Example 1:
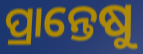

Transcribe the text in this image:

ପ୍ରାନ୍ତେଷୁ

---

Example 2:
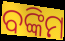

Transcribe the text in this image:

ବଙ୍କିମ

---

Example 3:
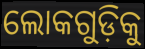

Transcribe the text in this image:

ଲୋକଗୁଡ଼ିକୁ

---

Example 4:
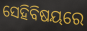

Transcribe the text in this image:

ସେହିବିଷୟରେ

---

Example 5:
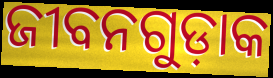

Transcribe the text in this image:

ଜୀବନଗୁଡ଼ାକ